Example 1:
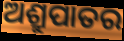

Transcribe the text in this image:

ଅଶ୍ରୁପାତର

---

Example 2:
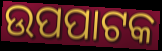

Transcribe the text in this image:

ଉପପାଟକ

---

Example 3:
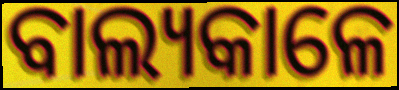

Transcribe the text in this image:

ବାଲ୍ୟକାଳେ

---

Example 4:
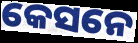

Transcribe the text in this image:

କେସନେ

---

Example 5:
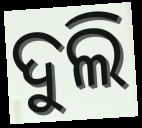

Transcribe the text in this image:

ଦୁଲି